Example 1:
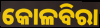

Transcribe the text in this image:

କୋଳବିରା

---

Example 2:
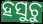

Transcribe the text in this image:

ହସୁଚୁ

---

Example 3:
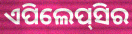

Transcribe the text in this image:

ଏପିଲେପ୍‌ସିର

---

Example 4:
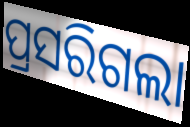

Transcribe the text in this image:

ପ୍ରସରିଗଲା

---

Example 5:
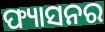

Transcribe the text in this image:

ଫ୍ୟାସନର